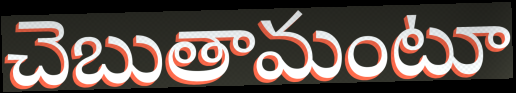
చెబుతామంటూ